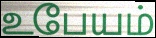
உபேயம்